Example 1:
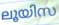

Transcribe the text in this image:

ലൂയിസ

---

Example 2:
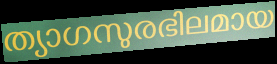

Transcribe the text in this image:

ത്യാഗസുരഭിലമായ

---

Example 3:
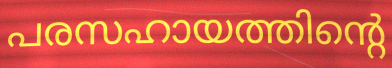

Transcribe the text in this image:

പരസഹായത്തിന്റെ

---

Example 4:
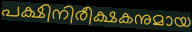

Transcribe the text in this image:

പക്ഷിനിരീക്ഷകനുമായ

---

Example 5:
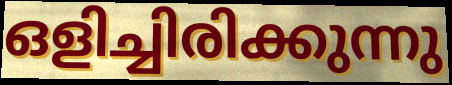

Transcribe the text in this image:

ഒളിച്ചിരിക്കുന്നു